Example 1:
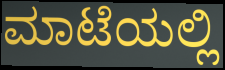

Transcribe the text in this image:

ಮಾಟೆಯಲ್ಲಿ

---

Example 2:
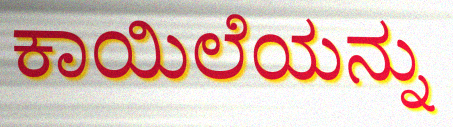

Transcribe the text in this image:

ಕಾಯಿಲೆಯನ್ನು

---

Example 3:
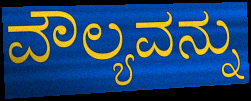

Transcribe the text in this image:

ವೌಲ್ಯವನ್ನು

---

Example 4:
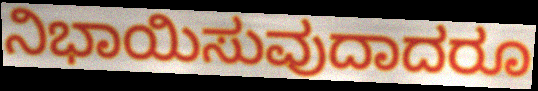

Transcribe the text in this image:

ನಿಭಾಯಿಸುವುದಾದರೂ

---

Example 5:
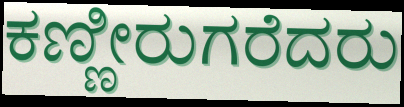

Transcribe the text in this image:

ಕಣ್ಣೀರುಗರೆದರು